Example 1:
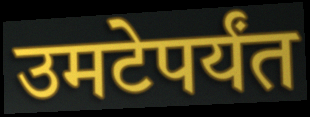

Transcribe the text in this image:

उमटेपर्यंत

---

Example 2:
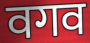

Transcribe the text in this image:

वगव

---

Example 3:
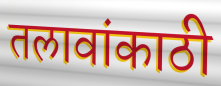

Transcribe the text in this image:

तलावांकाठी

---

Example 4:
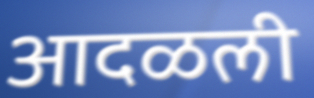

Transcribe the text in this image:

आदळली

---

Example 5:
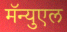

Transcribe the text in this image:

मॅन्युएल